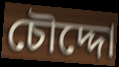
চৌদ্দো